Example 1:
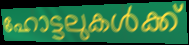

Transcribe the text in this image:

ഹോട്ടലുകൾക്ക്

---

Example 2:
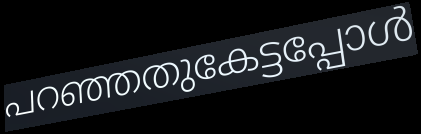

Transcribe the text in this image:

പറഞ്ഞതുകേട്ടപ്പോൾ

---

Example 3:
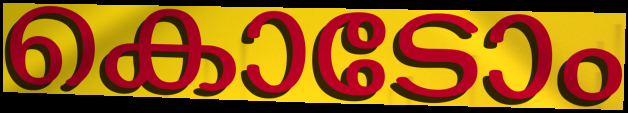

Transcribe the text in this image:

കൊടോം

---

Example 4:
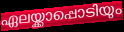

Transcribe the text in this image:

ഏലയ്ക്കാപ്പൊടിയും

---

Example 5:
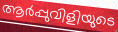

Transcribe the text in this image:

ആർപ്പുവിളിയുടെ